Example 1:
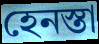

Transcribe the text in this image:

হেনস্তা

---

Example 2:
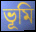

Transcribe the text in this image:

ভূমি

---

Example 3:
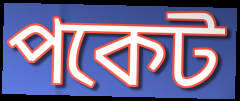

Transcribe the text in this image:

পকেট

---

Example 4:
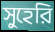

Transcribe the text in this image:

সুহেরি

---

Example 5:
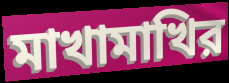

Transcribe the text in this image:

মাখামাখির